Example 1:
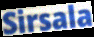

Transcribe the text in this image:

Sirsala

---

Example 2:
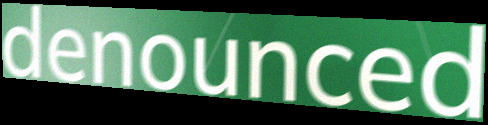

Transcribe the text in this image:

denounced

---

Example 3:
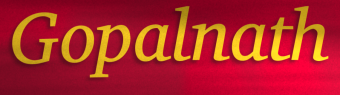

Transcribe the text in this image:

Gopalnath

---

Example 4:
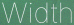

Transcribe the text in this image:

Width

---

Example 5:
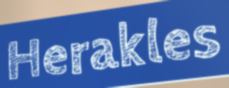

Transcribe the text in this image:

Herakles